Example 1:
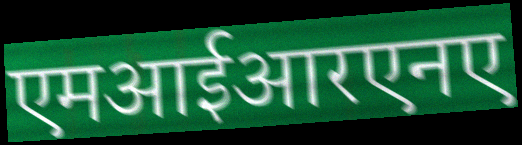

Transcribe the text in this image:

एमआईआरएनए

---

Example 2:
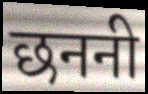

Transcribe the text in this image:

छननी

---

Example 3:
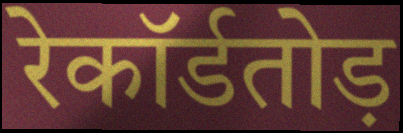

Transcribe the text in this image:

रेकॉर्डतोड़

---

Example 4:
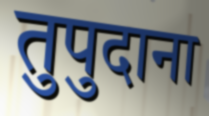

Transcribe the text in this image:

तुपुदाना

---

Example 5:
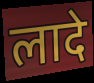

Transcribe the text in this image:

लादे